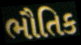
ભૌતિક